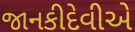
જાનકીદેવીએ